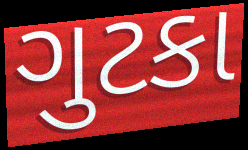
ગુટકા